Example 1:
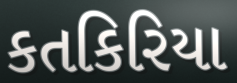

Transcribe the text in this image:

કતકિરિયા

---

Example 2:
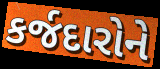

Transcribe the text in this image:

કર્જદારોને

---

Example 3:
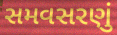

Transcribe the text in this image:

સમવસરણું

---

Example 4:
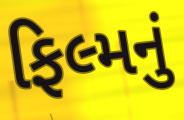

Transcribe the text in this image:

ફિલ્મનું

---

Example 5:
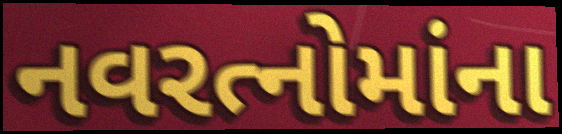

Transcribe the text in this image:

નવરત્નોમાંના